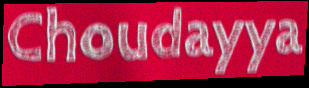
Choudayya